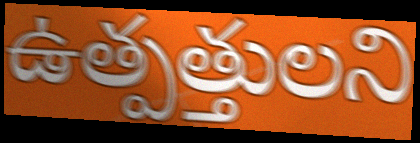
ఉత్పత్తులని